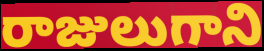
రాజులుగాని